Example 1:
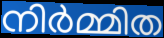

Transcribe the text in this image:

നിർമ്മിത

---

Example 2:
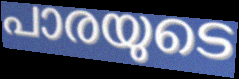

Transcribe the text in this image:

പാരയുടെ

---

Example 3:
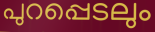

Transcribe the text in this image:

പുറപ്പെടലും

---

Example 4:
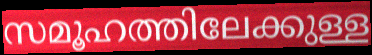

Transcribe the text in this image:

സമൂഹത്തിലേക്കുള്ള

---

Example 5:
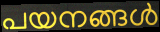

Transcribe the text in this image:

പയനങ്ങൾ